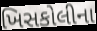
ખિસકોલીના